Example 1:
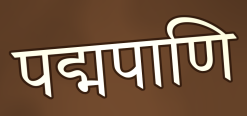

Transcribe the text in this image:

पद्मपाणि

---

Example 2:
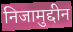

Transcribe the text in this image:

निजामुद्दीन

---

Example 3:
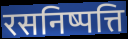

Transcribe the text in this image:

रसनिष्पत्ति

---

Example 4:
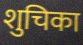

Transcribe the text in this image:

शुचिका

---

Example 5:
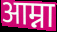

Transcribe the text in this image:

आम्ना